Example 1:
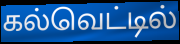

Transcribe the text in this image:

கல்வெட்டில்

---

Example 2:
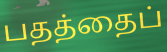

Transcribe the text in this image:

பதத்தைப்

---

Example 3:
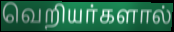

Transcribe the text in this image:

வெறியர்களால்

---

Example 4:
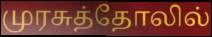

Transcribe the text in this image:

முரசுத்தோலில்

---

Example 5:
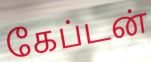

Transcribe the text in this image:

கேப்டன்